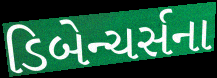
ડિબેન્ચર્સના